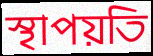
স্থাপয়তি